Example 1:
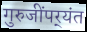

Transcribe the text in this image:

गुरुजींपर्यंत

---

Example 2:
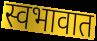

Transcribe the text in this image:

स्वभावात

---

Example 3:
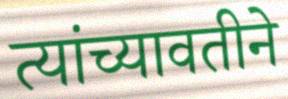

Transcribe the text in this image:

त्यांच्यावतीने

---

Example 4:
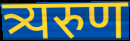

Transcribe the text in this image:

त्र्यरुण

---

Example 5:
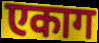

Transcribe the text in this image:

एकाग